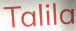
Talila